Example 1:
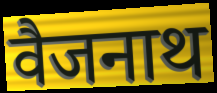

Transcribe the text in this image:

वैजनाथ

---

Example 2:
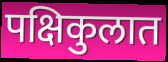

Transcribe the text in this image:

पक्षिकुलात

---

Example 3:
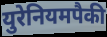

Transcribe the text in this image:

युरेनियमपैकी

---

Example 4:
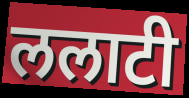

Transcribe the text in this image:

ललाटी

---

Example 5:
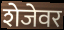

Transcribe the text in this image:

शेजेवर